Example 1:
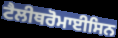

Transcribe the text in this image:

ਟੈਲੀਥਰੋਮਾਈਸਿਨ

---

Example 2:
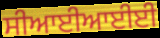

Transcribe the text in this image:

ਸੀਆਈਆਈਈ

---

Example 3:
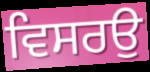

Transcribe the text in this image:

ਵਿਸਰਉ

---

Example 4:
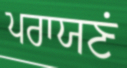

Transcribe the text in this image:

ਪਰਾਯਣਂ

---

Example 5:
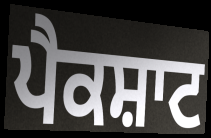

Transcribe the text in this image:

ਪੈਕਸ਼ਾਟ